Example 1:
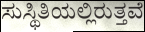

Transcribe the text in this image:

ಸುಸ್ಥಿತಿಯಲ್ಲಿರುತ್ತವೆ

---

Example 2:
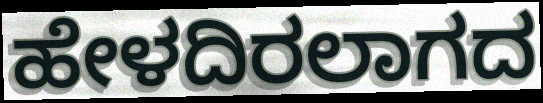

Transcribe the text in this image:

ಹೇಳದಿರಲಾಗದ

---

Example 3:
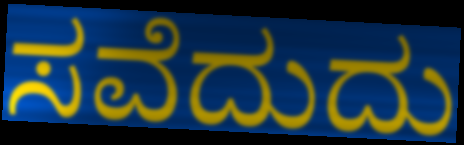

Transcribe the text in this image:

ಸವೆದುದು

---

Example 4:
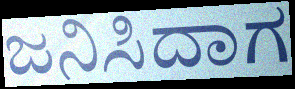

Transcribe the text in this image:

ಜನಿಸಿದಾಗ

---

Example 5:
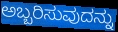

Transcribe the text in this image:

ಅಬ್ಬರಿಸುವುದನ್ನು